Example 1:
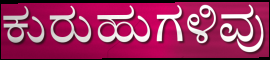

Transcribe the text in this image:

ಕುರುಹುಗಳಿವು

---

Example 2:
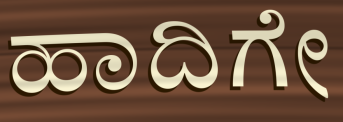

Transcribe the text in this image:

ಹಾದಿಗೇ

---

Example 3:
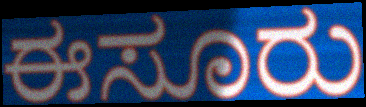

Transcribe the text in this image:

ಈಸೂರು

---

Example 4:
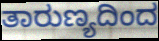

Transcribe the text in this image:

ತಾರುಣ್ಯದಿಂದ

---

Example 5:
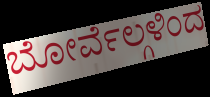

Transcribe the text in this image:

ಬೋರ್ವೆಲ್ಗಳಿಂದ